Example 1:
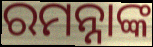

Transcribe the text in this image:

ରମନ୍ନାଙ୍କ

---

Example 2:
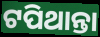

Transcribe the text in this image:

ଟପିଥାନ୍ତା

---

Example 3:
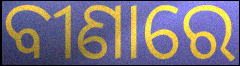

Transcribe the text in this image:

ବୀଣାରେ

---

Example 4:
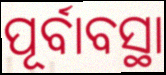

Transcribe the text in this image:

ପୂର୍ବାବସ୍ଥା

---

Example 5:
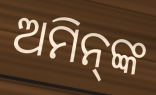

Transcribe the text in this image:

ଅମିନ୍‌ଙ୍କ